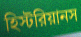
হিস্টরিয়ানস